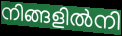
നിങ്ങളിൽനി